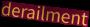
derailment